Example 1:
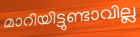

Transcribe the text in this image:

മാറിയിട്ടുണ്ടാവില്ല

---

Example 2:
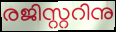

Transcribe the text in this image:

രജിസ്റ്ററിനു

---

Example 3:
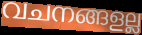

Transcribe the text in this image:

വചനങ്ങളല്ല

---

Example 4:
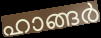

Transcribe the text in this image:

ഹാങ്ങർ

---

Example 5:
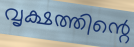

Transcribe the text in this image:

വൃക്ഷത്തിന്റെ